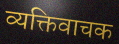
व्यक्तिवाचक